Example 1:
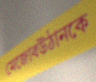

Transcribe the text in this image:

মেজোবউঠানকে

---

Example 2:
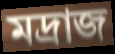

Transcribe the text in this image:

মদ্রাজ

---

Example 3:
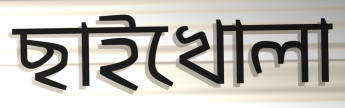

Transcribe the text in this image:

ছাইখোলা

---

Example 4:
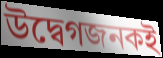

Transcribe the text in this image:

উদ্বেগজনকই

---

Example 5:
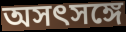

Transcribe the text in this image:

অসৎসঙ্গে